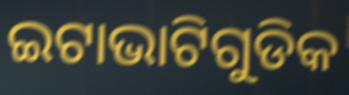
ଇଟାଭାଟିଗୁଡିକ